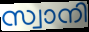
സ്വാനി